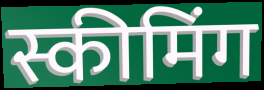
स्कीमिंग